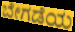
ಬೇಗಡೆಯ